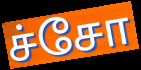
ச்சோ